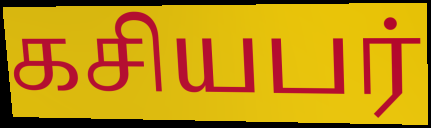
கசியபர்